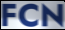
FCN